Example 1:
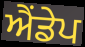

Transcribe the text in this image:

ਐਂਡੇਪ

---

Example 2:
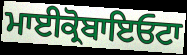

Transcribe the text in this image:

ਮਾਈਕ੍ਰੋਬਾਇਓਟਾ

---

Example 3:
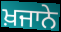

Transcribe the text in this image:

ਖ਼ਜਾਨੇ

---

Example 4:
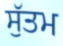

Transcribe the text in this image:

ਸੁੱਤਮ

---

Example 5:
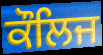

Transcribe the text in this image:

ਕੌਲਿਜ